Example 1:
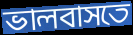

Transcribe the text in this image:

ভালবাসতে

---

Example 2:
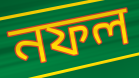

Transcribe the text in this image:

নফল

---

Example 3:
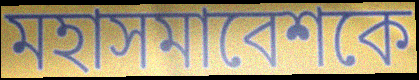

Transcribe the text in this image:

মহাসমাবেশকে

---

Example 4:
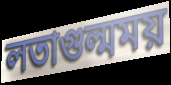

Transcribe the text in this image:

লতাগুল্মময়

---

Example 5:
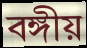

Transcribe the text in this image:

বঙ্গীয়